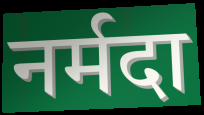
नर्मदा